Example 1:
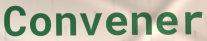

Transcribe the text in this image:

Convener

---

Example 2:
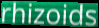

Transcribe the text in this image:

rhizoids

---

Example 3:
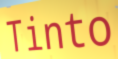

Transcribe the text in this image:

Tinto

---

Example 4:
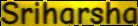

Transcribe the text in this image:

Sriharsha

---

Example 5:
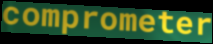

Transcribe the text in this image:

comprometer